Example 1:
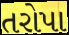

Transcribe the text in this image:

તરોપા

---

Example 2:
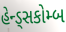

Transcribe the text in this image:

હેન્ડ્સકોમ્બ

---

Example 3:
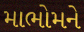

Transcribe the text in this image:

માભોમને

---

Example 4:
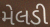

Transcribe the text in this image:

મેલડી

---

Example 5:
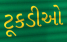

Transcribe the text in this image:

ટૂકડીઓ